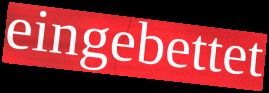
eingebettet